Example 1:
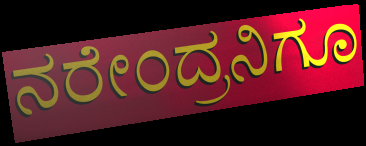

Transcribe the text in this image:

ನರೇಂದ್ರನಿಗೂ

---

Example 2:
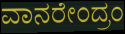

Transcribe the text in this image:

ವಾನರೇಂದ್ರಂ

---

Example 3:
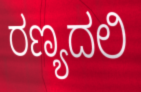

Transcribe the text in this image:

ರಣ್ಯದಲಿ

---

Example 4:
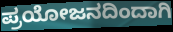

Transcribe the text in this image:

ಪ್ರಯೋಜನದಿಂದಾಗಿ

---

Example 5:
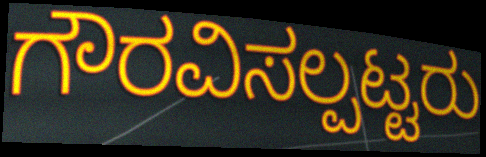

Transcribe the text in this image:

ಗೌರವಿಸಲ್ಪಟ್ಟರು